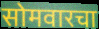
सोमवारचा